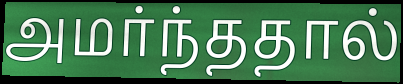
அமர்ந்ததால்